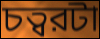
চত্বরটা